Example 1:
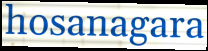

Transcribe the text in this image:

hosanagara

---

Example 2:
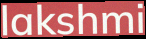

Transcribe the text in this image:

lakshmi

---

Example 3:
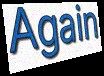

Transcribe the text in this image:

Again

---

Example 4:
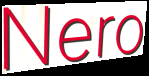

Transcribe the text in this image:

Nero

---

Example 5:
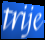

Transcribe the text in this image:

trije